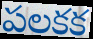
పలకక